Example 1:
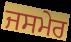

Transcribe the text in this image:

ਜਸਮੇਰ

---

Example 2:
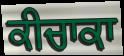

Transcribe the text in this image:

ਕੀਚਾਕਾ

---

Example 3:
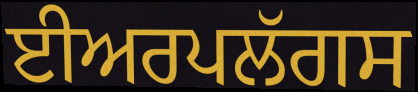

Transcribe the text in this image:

ਈਅਰਪਲੱਗਸ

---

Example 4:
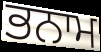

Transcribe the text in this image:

ਭਨਾਮ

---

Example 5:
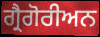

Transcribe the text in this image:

ਗ੍ਰੈਗੋਰੀਅਨ